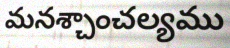
మనశ్చాంచల్యము